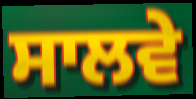
ਸਾਲਵੇ